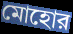
মোহোর